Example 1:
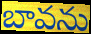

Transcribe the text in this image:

బావను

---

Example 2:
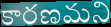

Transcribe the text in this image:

కారణమని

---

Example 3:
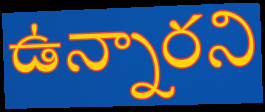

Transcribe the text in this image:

ఉన్నారని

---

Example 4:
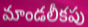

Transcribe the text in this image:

మాండలీకపు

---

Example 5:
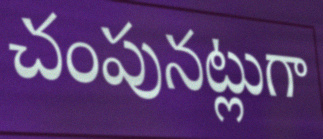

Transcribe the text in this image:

చంపునట్లుగా